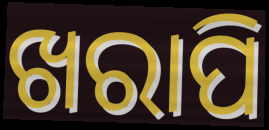
ଖରାପି